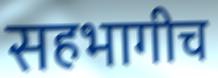
सहभागीच